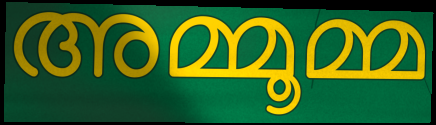
അമ്മൂമ്മ